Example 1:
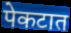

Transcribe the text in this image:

पेकटात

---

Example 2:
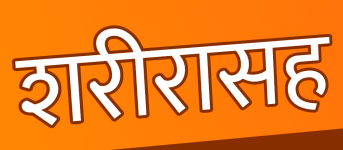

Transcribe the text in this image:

शरीरासह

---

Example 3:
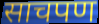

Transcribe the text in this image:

साचपण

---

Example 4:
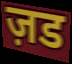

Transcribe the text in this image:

ज़ड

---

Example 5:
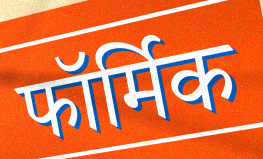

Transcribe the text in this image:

फॉर्मिक